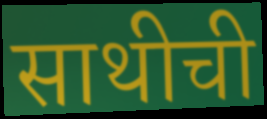
साथीची